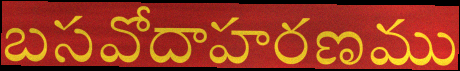
బసవోదాహరణము